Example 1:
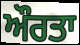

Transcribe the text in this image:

ਔਰਤਾ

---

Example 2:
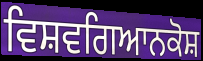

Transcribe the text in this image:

ਵਿਸ਼ਵਗਿਆਨਕੋਸ਼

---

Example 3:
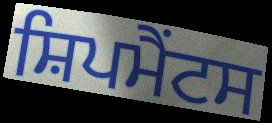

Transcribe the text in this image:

ਸ਼ਿਪਮੈਂਟਸ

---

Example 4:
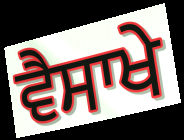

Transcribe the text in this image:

ਵੈਸਾਖੇ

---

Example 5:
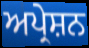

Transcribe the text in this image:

ਅਪ੍ਰੇਸ਼ਨ